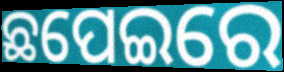
ଛପେଇରେ